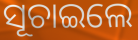
ସୂଚାଇଲେ